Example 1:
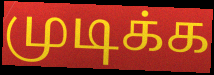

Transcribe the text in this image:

முடிக்க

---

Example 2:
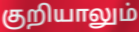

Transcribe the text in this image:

குறியாலும்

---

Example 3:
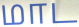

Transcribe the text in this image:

மாட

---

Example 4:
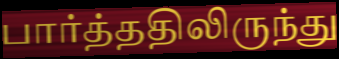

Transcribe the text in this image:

பார்த்ததிலிருந்து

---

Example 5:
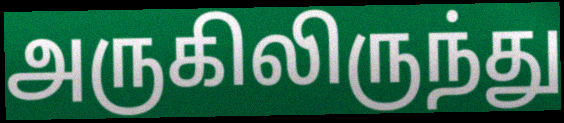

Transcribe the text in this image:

அருகிலிருந்து